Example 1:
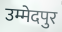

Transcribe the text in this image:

उम्मेदपुर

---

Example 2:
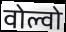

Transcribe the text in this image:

वोल्वो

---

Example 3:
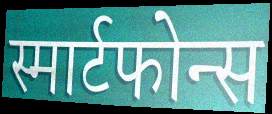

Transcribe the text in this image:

स्मार्टफोन्स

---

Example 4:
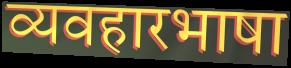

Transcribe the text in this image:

व्यवहारभाषा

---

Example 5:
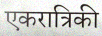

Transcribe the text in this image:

एकरात्रिकी